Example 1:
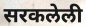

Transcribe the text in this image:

सरकलेली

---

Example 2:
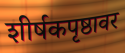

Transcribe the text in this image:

शीर्षकपृष्ठावर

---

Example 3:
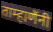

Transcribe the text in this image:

ताम्हाणेंनी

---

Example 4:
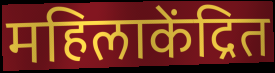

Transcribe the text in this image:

महिलाकेंद्रित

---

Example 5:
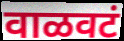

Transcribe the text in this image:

वाळवटं